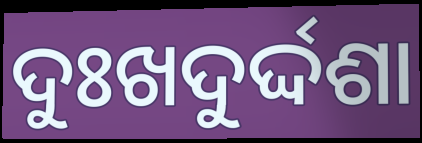
ଦୁଃଖଦୁର୍ଦ୍ଦଶା